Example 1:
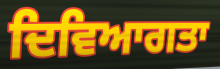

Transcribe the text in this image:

ਦਿਵਿਆਗਤਾ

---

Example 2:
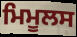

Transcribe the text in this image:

ਮਿਮੂਲਸ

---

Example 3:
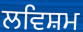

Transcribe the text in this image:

ਲਵਿਸ਼ਮ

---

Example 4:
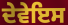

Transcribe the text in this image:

ਦੇਵੇਇਸ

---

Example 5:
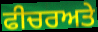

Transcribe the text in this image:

ਫੀਚਰਅਤੇ